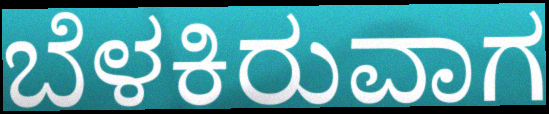
ಬೆಳಕಿರುವಾಗ